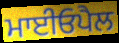
ਮਾਈਓਪੈਲ